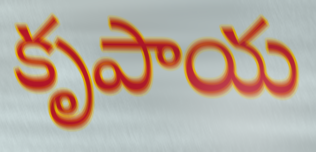
కృపాయ